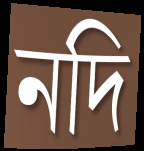
নদি